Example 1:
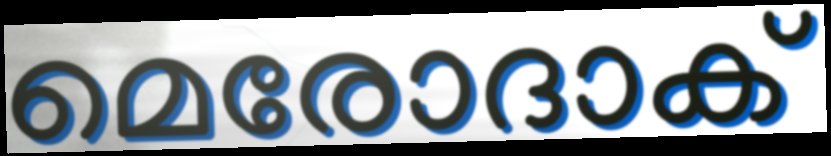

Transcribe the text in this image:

മെരോദാക്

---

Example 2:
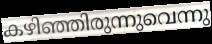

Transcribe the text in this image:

കഴിഞ്ഞിരുന്നുവെന്നു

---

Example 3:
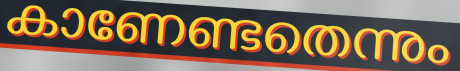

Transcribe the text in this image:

കാണേണ്ടതെന്നും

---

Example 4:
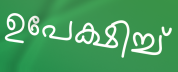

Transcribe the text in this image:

ഉപേക്ഷിച്ച്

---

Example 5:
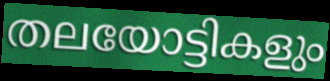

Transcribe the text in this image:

തലയോട്ടികളും